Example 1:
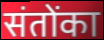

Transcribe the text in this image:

संतोंका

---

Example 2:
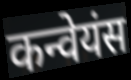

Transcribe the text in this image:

कन्वेयंस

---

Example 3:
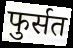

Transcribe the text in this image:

फुर्सत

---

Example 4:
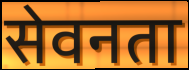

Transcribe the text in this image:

सेवनता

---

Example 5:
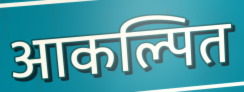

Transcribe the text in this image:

आकल्पित